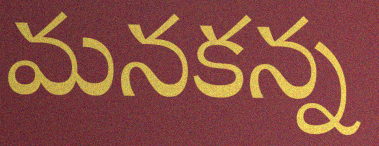
మనకన్న